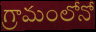
గ్రామంలోనో